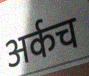
अर्कच